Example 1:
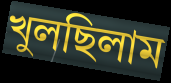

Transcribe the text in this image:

খুলছিলাম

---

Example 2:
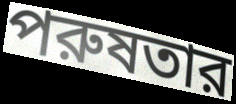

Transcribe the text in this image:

পরুষতার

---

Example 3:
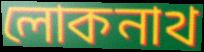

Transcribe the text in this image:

লোকনাথ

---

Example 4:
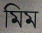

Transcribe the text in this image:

মিম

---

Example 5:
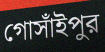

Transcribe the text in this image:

গোসাঁইপুর